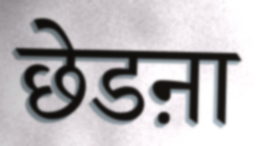
छेडऩा